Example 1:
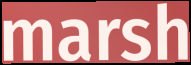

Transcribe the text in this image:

marsh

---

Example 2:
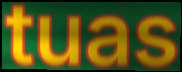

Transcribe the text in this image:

tuas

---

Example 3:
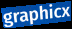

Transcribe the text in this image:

graphicx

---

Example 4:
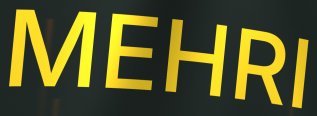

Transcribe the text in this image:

MEHRI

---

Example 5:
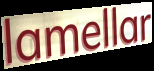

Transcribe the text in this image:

lamellar